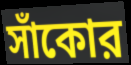
সাঁকোর